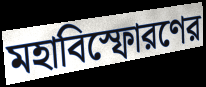
মহাবিস্ফোরণের